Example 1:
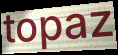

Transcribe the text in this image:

topaz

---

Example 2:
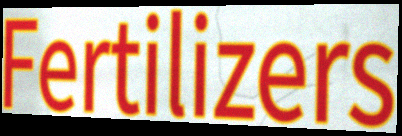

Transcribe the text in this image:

Fertilizers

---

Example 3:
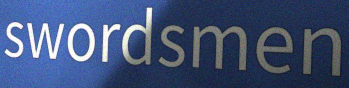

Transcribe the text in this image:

swordsmen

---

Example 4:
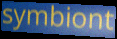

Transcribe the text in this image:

symbiont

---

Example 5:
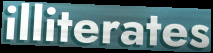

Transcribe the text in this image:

illiterates